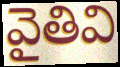
వైతివి